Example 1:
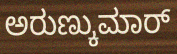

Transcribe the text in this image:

ಅರುಣ್ಕುಮಾರ್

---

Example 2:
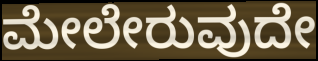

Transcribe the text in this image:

ಮೇಲೇರುವುದೇ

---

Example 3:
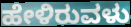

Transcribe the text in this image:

ಹೇಳಿರುವಳು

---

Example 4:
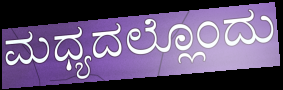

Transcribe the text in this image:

ಮಧ್ಯದಲ್ಲೊಂದು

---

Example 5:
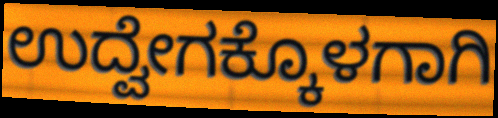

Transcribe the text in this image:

ಉದ್ವೇಗಕ್ಕೊಳಗಾಗಿ